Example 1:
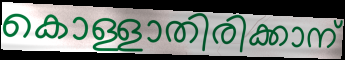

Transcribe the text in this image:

കൊള്ളാതിരിക്കാന്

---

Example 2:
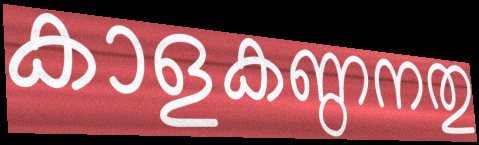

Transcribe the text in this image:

കാളകണ്ഠനതു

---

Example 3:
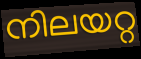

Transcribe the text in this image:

നിലയറ്റ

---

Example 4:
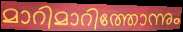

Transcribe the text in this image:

മാറിമാറിത്തോന്നും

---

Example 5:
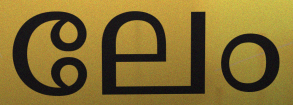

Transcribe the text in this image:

ലേം